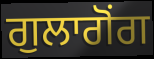
ਗੁਲਾਗੋਂਗ